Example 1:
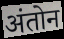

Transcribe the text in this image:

अंतोन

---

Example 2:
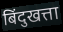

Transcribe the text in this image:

बिंदुखत्ता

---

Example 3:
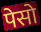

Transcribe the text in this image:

पेसो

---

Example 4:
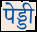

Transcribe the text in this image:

पेड्डी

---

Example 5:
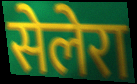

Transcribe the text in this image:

सेलेरा